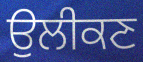
ਉਲੀਕਣ